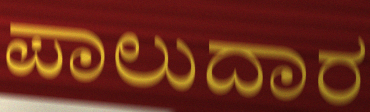
ಪಾಲುದಾರ